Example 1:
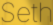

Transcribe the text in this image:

Seth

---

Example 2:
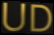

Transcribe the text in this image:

UD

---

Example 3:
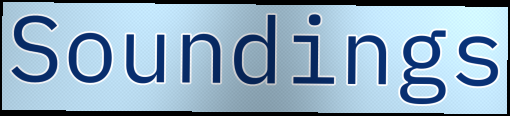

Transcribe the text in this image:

Soundings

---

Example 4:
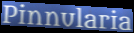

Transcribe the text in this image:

Pinnularia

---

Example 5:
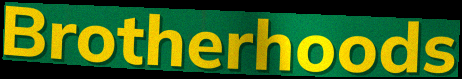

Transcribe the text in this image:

Brotherhoods